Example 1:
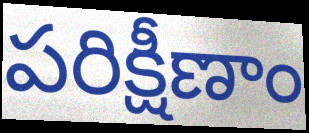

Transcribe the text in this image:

పరిక్షీణాం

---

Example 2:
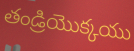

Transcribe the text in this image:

తండ్రియొక్కయు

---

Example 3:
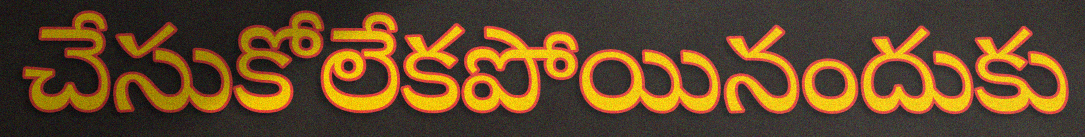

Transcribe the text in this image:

చేసుకోలేకపోయినందుకు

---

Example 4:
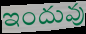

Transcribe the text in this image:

ఇందువు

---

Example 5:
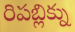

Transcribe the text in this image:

రిపబ్లిక్ను